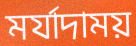
মর্যাদাময়